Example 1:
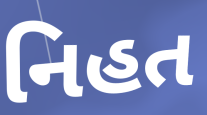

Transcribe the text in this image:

નિહત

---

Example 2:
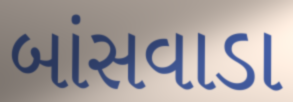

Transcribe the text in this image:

બાંસવાડા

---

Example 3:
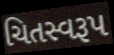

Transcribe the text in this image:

ચિતસ્વરૂપ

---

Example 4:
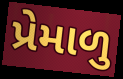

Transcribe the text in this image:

પ્રેમાળુ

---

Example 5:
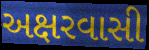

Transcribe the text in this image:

અક્ષરવાસી